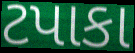
ટપાકા